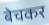
बेचकर